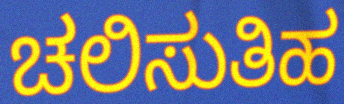
ಚಲಿಸುತಿಹ